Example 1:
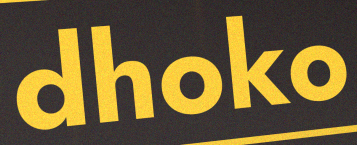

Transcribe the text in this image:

dhoko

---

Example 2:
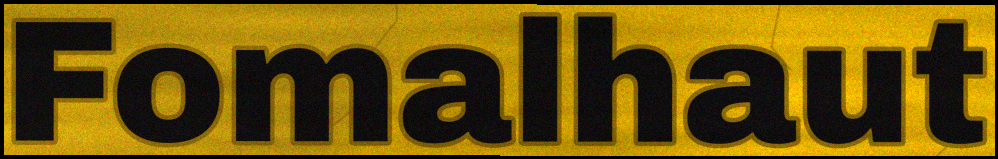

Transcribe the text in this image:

Fomalhaut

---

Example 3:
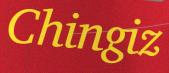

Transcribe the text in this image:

Chingiz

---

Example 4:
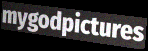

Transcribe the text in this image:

mygodpictures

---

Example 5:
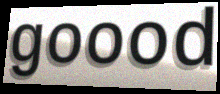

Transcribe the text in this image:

goood